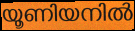
യൂണിയനിൽ